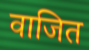
वाजित